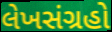
લેખસંગ્રહો